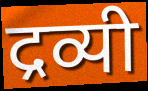
द्रव्यी